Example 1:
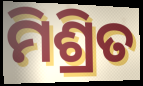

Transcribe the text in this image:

ମିଶ୍ରିତ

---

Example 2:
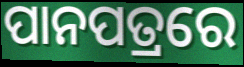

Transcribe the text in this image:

ପାନପତ୍ରରେ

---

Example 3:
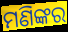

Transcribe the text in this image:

ମଣିଙ୍କର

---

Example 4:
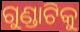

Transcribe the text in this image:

ଗୁଣ୍ଡାଟିକୁ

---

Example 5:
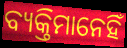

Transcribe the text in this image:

ବ୍ୟକ୍ତିମାନେହିଁ